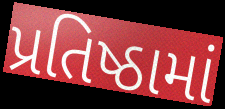
પ્રતિષ્ઠામાં